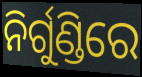
ନିର୍ଗୁଣ୍ଡିରେ